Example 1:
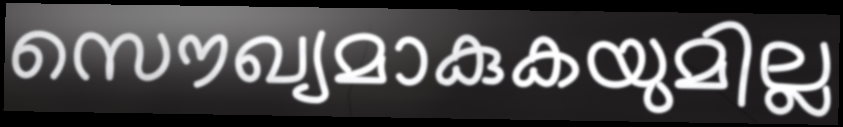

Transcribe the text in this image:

സൌഖ്യമാകുകയുമില്ല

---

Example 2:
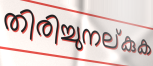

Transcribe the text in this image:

തിരിച്ചുനല്കുക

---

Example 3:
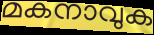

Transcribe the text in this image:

മകനാവുക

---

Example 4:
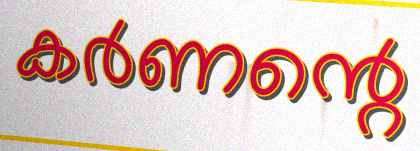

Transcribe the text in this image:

കർണന്റെ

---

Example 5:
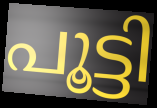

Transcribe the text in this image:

പൂട്ടി